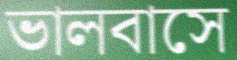
ভালবাসে